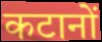
कटानों